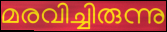
മരവിച്ചിരുന്നു